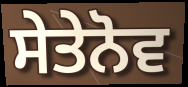
ਸੇਤੇਨੋਵ